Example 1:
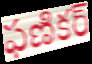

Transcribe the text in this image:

ఫణికర్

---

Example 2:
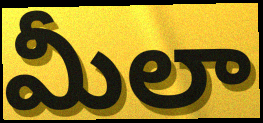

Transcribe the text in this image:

మీలా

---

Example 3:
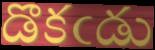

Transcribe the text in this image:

డొకఁడు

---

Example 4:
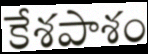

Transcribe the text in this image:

కేశపాశం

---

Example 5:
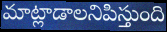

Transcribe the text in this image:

మాట్లాడాలనిపిస్తుంది